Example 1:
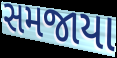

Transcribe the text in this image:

સમજાયા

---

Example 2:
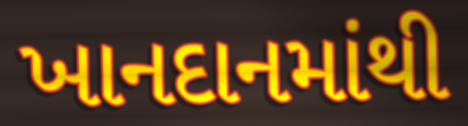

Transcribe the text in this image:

ખાનદાનમાંથી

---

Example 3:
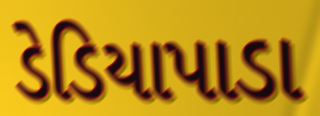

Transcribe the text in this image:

ડેડિયાપાડા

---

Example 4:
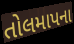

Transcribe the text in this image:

તોલમાપના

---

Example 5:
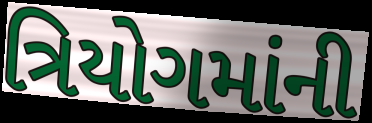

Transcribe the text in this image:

ત્રિયોગમાંની